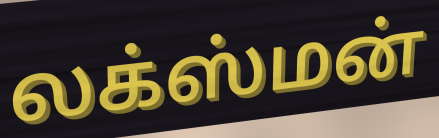
லக்ஸ்மன்